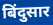
बिंदुसार